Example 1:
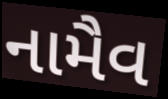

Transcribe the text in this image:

નામૈવ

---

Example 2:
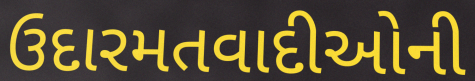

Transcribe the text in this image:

ઉદારમતવાદીઓની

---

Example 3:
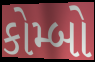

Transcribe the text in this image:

કોમ્બો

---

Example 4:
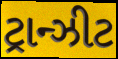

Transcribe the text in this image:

ટ્રાન્ઝીટ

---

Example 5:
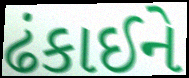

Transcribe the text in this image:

ઢંકાઈને